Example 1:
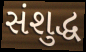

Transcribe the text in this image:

સંશુદ્ધ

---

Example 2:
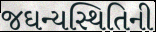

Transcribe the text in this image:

જઘન્યસ્થિતિની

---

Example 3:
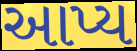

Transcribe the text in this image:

આપ્ય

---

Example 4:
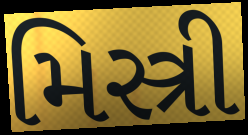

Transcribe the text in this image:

મિસ્ત્રી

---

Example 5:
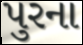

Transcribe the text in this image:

પુરના